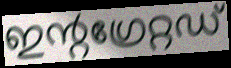
ഇന്റഗ്രേറ്റഡ്